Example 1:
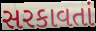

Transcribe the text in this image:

સરકાવતાં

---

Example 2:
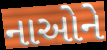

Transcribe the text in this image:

નાઓને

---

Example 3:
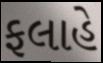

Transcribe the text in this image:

ફલાહે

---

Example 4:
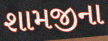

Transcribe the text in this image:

શામજીના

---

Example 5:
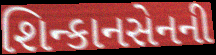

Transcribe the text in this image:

શિન્કાનસેનની